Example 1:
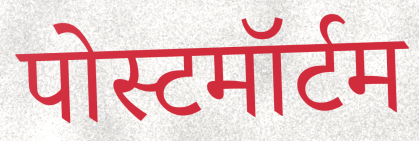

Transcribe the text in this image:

पोस्टमॉर्टम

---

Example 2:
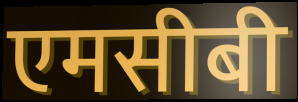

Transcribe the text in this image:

एमसीबी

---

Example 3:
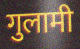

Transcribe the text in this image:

गुलामी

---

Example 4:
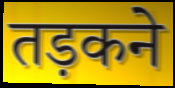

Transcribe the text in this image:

तड़कने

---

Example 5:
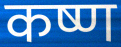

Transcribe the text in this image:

कष्ण